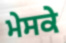
ਮੇਸਕੇ